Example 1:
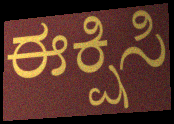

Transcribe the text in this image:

ಈಕ್ಷಿಸಿ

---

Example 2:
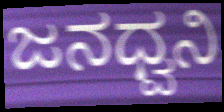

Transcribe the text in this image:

ಜನಧ್ವನಿ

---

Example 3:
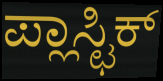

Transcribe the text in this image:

ಪ್ಲಾಸ್ಟಿಕ್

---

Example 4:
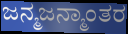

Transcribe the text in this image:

ಜನ್ಮಜನ್ಮಾಂತರ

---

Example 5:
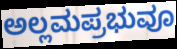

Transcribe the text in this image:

ಅಲ್ಲಮಪ್ರಭುವೂ